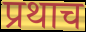
प्रथाच